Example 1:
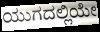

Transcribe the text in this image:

ಯುಗದಲ್ಲಿಯೇ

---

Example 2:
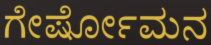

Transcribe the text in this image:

ಗೇರ್ಷೋಮನ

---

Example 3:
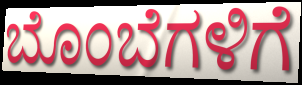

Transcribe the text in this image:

ಬೊಂಬೆಗಳಿಗೆ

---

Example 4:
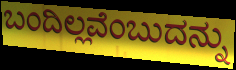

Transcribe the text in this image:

ಬಂದಿಲ್ಲವೆಂಬುದನ್ನು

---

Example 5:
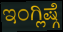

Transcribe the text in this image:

ಇಂಗ್ಲಿಷ್ಗೆ